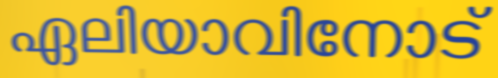
ഏലിയാവിനോട്